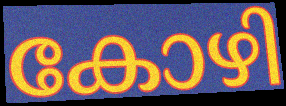
കോഴി